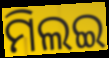
ମିଲଇ